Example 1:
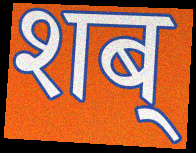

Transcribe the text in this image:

शब्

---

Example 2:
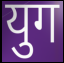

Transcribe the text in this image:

युग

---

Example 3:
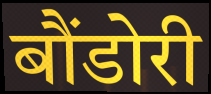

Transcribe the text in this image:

बौंडोरी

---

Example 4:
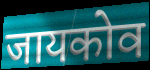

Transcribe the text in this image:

जायकोव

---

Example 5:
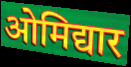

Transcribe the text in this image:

ओमिद्यार